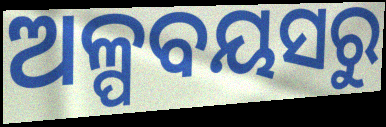
ଅଳ୍ପବୟସରୁ